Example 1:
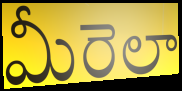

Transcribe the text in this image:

మీరెలా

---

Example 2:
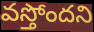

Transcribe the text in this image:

వస్తోందని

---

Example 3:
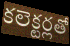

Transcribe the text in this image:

కలెక్టర్లతో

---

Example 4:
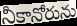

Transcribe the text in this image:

నీకానోరును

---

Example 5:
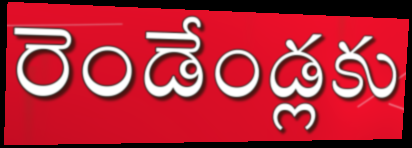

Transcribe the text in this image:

రెండేండ్లకు